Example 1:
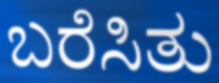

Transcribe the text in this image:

ಬರೆಸಿತು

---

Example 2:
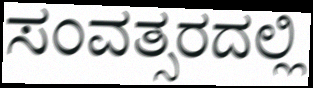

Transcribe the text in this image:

ಸಂವತ್ಸರದಲ್ಲಿ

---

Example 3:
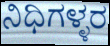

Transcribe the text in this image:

ನಿಧಿಗಳ್ಳರ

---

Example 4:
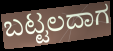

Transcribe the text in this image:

ಬಟ್ಟಲದಾಗ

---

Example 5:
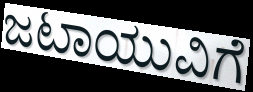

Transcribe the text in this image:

ಜಟಾಯುವಿಗೆ